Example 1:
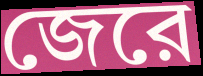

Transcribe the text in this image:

জেরে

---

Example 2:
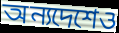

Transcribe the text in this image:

অন্যদেশেও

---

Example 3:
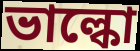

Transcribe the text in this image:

ভাল্কো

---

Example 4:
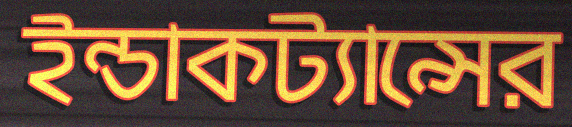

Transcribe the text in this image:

ইন্ডাকট্যান্সের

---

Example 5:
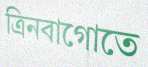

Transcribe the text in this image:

ত্রিনবাগোতে